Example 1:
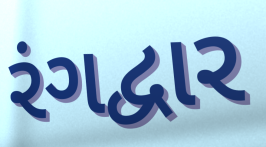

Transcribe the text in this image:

રંગદ્વાર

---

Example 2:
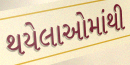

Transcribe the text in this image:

થયેલાઓમાંથી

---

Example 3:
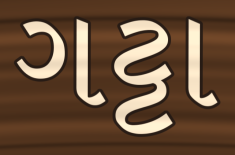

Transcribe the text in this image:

ગટ્ટા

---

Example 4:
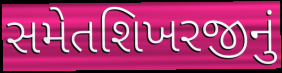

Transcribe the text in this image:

સમેતશિખરજીનું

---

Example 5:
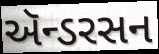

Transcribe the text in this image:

ઍન્ડરસન